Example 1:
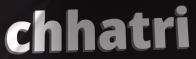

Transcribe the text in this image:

chhatri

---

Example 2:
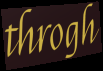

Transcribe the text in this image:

throgh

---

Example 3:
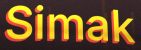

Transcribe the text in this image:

Simak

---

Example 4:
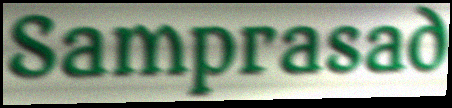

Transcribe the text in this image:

Samprasad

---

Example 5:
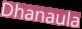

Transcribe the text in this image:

Dhanaula